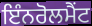
ਇੰਨਰੋਲਮੈਂਟ